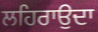
ਲਹਿਰਾਉਦਾ